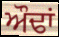
ਔਢਾਂ